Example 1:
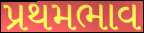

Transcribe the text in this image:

પ્રથમભાવ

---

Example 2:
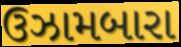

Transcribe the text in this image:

ઉઝામબારા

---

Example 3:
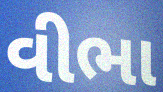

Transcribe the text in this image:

વીભા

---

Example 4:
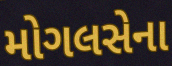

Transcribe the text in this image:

મોગલસેના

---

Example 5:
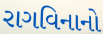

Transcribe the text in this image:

રાગવિનાનો